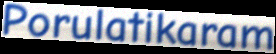
Porulatikaram